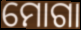
ମୋଗା